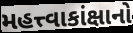
મહત્ત્વાકાંક્ષાનો